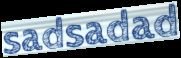
sadsadad